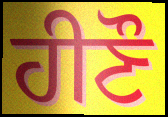
ਹੀਣੌ